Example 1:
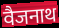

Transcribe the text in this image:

वैजनाथ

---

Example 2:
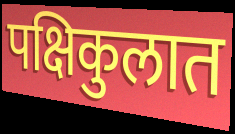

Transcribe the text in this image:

पक्षिकुलात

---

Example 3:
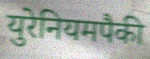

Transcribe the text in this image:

युरेनियमपैकी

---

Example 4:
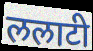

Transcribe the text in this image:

ललाटी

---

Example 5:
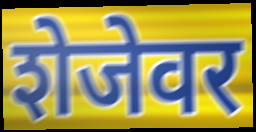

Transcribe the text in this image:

शेजेवर